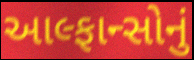
આલ્ફાન્સોનું